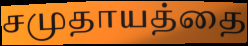
சமுதாயத்தை